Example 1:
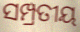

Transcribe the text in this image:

ସମ୍ପ୍ରତୀୟ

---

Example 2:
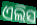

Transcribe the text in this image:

ଏଲିସ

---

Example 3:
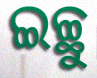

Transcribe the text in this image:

ଇଚ୍ଛୁ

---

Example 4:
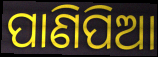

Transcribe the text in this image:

ପାଣିପିଆ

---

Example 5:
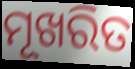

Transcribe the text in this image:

ମୂଖରିତ